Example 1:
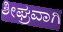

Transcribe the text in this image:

ಶೀಘ್ರವಾಗಿ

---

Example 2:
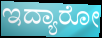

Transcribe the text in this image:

ಇದ್ಯಾರೋ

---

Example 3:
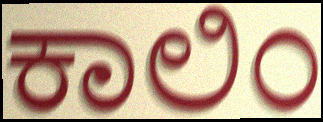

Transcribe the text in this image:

ಕಾಲಿಂ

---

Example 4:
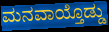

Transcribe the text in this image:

ಮನವಾಯ್ತೊಡ್ಡು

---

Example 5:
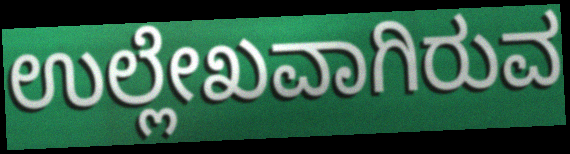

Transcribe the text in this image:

ಉಲ್ಲೇಖವಾಗಿರುವ